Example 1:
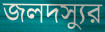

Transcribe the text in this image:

জলদস্যুর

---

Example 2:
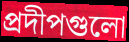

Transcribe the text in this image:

প্রদীপগুলো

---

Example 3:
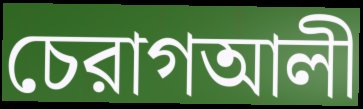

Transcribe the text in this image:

চেরাগআলী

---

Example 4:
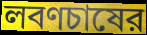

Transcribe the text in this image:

লবণচাষের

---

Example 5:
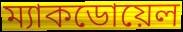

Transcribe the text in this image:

ম্যাকডোয়েল